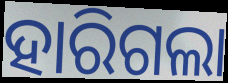
ହାରିଗଲା